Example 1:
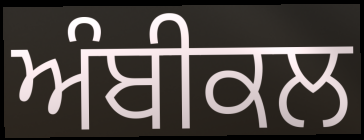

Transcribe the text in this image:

ਅੰਬੀਕਲ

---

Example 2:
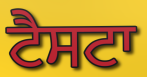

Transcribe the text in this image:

ਟੈਸਟਾ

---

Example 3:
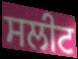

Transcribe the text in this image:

ਸਲੀਟ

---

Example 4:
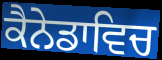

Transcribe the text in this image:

ਕੈਨੇਡਾਵਿਚ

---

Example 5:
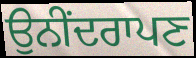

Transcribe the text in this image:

ਉਨੀਂਦਰਾਪਣ